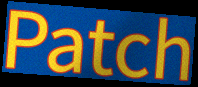
Patch